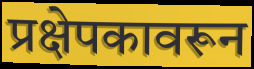
प्रक्षेपकावरून